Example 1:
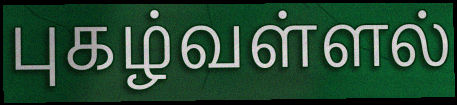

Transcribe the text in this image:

புகழ்வள்ளல்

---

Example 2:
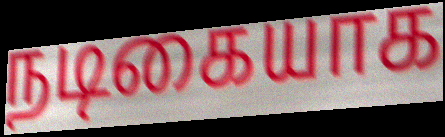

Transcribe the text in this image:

நடிகையாக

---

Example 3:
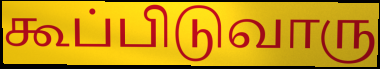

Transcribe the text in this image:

கூப்பிடுவாரு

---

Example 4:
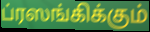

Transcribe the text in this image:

ப்ரஸங்கிக்கும்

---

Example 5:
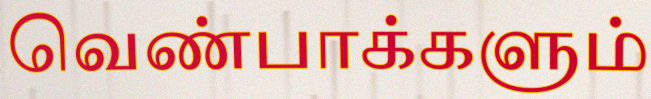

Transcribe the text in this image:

வெண்பாக்களும்